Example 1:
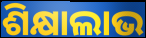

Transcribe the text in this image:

ଶିକ୍ଷାଲାଭ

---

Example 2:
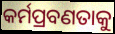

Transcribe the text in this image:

କର୍ମପ୍ରବଣତାକୁ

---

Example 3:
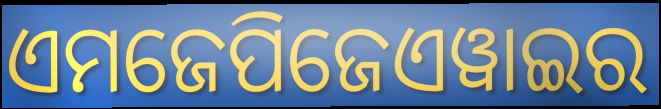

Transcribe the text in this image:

ଏମଜେପିଜେଏୱାଇର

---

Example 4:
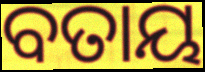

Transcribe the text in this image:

ବତାୟ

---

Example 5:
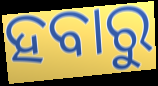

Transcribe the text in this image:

ହବାରୁ